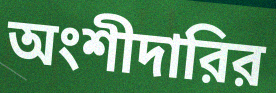
অংশীদারির